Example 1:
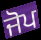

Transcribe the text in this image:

ਜੋਪ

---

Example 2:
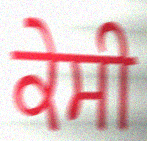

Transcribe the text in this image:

ਕੇਸੀ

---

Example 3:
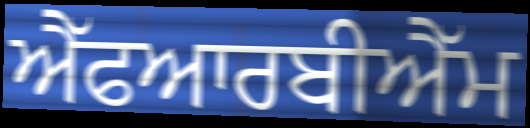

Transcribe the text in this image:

ਐੱਫਆਰਬੀਐੱਮ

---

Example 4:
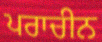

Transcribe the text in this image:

ਪਰਾਚੀਨ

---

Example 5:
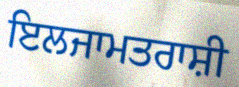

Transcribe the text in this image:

ਇਲਜਾਮਤਰਾਸ਼ੀ